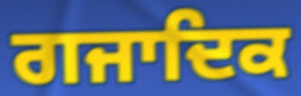
ਗਜਾਦਿਕ